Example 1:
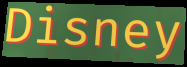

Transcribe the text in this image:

Disney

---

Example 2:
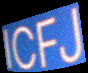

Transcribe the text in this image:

ICFJ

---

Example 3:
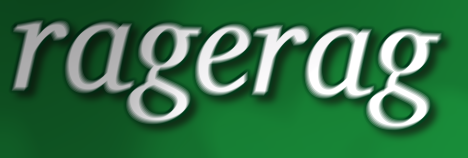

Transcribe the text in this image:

ragerag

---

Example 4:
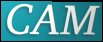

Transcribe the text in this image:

CAM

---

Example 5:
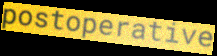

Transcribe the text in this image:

postoperative